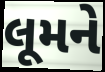
લૂમને